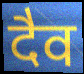
दैव